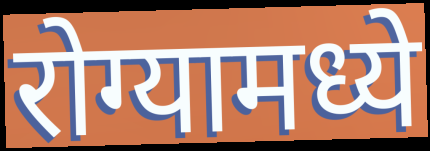
रोग्यामध्ये